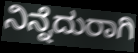
ನಿನ್ನೆದುರಾಗಿ